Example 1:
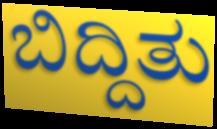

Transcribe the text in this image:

ಬಿದ್ದಿತು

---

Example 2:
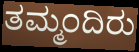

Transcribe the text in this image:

ತಮ್ಮಂದಿರು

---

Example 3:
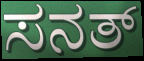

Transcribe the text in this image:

ಸನತ್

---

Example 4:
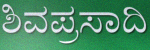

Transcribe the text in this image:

ಶಿವಪ್ರಸಾದಿ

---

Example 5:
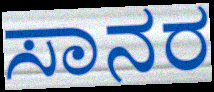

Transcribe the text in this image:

ಸಾನರ